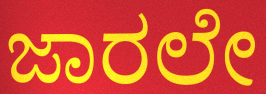
ಜಾರಲೇ